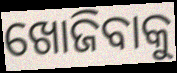
ଖୋଜିବାକୁ